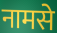
नामसे